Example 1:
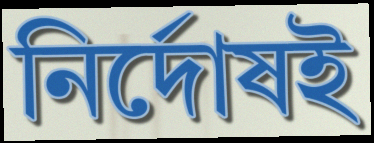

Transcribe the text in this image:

নির্দোষই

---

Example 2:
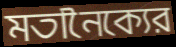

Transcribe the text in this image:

মতানৈক্যের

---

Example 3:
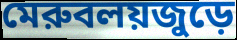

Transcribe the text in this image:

মেরুবলয়জুড়ে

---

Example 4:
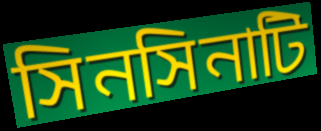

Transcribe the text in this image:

সিনসিনাটি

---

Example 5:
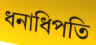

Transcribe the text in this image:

ধনাধিপতি